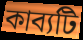
কাব্যটি